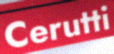
Cerutti